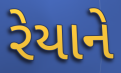
રેયાને